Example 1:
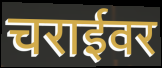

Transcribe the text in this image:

चराईवर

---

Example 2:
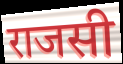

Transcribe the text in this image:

राजसी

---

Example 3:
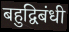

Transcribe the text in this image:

बहुद्विबंधी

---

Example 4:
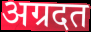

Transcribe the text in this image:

अग्रदत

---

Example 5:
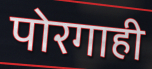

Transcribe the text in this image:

पोरगाही